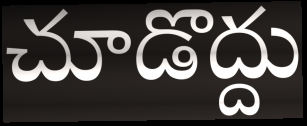
చూడొద్దు